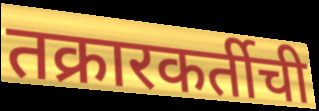
तक्रारकर्तीची